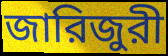
জারিজুরী